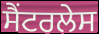
ਸੈਂਟਰਲੇਸ